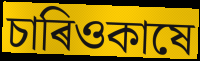
চাৰিওকাষে